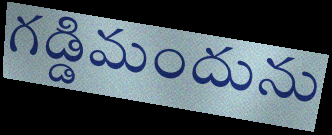
గడ్డిమందును